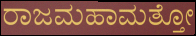
ರಾಜಮಹಾಮತ್ತೋ